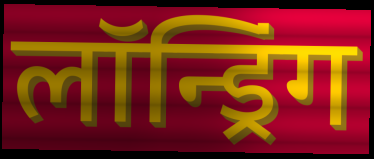
लॉन्ड्रिंग